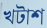
খটাশ